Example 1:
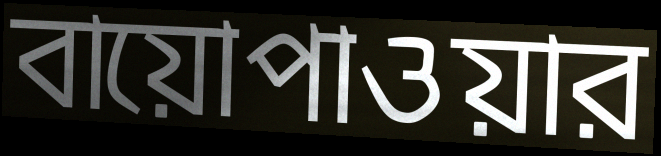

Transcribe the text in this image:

বায়োপাওয়ার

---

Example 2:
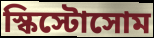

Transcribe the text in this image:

স্কিস্টোসোম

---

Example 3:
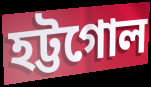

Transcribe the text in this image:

হট্টগোল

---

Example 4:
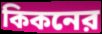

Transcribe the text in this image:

কিকনের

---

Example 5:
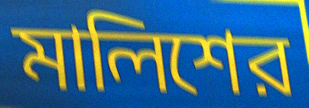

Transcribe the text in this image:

মালিশের